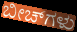
ಬೀಚ್‌ಗಳು